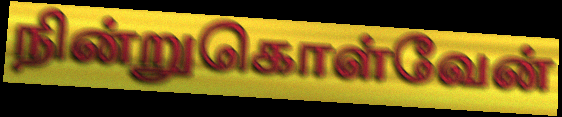
நின்றுகொள்வேன்